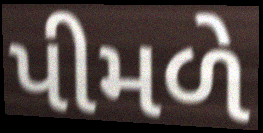
પીમળે